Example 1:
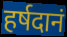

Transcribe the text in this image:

हर्षदानं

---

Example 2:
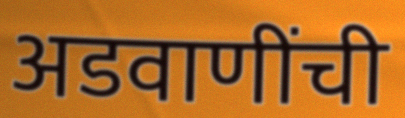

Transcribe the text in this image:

अडवाणींची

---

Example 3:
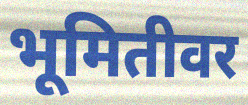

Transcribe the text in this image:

भूमितीवर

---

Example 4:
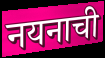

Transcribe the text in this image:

नयनाची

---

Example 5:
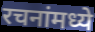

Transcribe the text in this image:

रचनांमध्ये